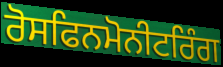
ਰੋਸਫਿਨਮੋਨੀਟਰਿੰਗ